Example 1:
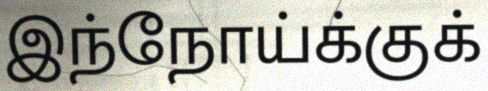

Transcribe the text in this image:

இந்நோய்க்குக்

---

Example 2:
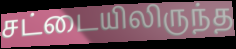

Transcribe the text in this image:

சட்டையிலிருந்த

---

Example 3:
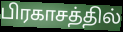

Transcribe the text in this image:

பிரகாசத்தில்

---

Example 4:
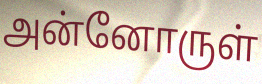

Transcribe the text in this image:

அன்னோருள்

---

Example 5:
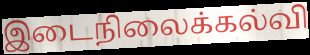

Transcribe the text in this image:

இடைநிலைக்கல்வி